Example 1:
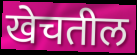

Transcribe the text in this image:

खेचतील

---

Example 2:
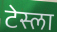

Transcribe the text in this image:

टेस्ला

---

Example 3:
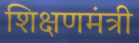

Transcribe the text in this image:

शिक्षणमंत्री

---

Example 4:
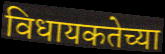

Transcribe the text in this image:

विधायकतेच्या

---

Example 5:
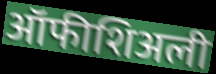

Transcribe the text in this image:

ऑफीशिअली